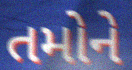
તમોને